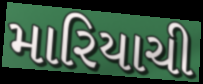
મારિયાચી